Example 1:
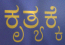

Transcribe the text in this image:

ಕೃತ್ಯಕ್ಕೆ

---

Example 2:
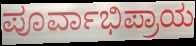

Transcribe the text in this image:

ಪೂರ್ವಾಭಿಪ್ರಾಯ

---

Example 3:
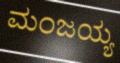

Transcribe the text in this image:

ಮಂಜಯ್ಯ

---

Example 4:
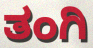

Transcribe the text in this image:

ತಂಗಿ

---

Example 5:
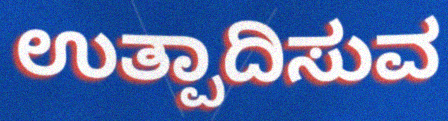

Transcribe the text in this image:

ಉತ್ಪಾದಿಸುವ